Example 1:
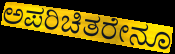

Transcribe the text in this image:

ಅಪರಿಚಿತರೇನೂ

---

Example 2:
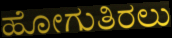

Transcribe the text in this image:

ಹೋಗುತಿರಲು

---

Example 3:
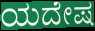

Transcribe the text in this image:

ಯದೇಷ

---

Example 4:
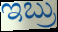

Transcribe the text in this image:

ಇಬ್ರು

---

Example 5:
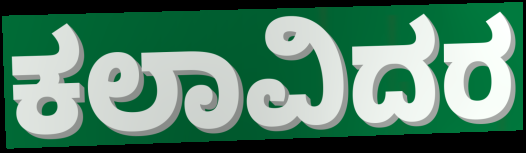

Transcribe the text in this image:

ಕಲಾವಿದರ